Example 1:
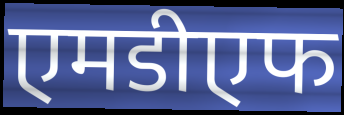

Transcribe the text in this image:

एमडीएफ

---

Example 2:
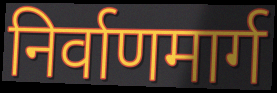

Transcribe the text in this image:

निर्वाणमार्ग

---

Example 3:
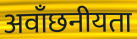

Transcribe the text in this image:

अवाँछनीयता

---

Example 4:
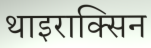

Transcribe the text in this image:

थाइराक्सिन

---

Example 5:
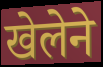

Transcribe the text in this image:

खेलेने